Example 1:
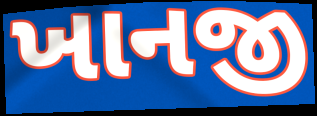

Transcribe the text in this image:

ખાનજી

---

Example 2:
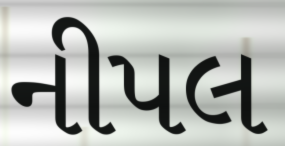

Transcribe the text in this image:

નીપલ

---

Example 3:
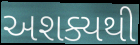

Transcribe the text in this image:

અશક્યથી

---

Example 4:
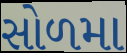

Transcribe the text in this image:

સોળમા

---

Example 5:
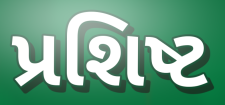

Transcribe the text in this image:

પ્રશિષ્ટ